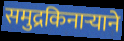
समुद्रकिनाऱ्याने